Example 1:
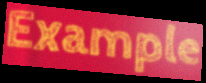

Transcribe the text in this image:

Example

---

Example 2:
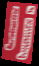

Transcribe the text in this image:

Jj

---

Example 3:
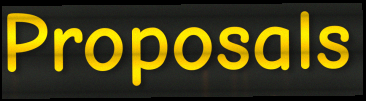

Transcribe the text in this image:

Proposals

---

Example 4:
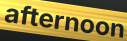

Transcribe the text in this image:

afternoon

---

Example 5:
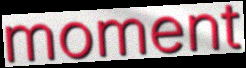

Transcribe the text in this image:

moment